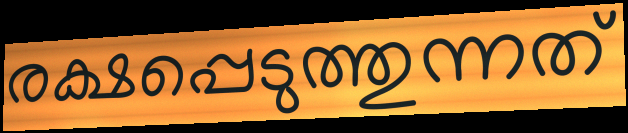
രക്ഷപ്പെടുത്തുന്നത്